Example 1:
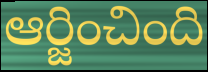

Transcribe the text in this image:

ఆర్జించింది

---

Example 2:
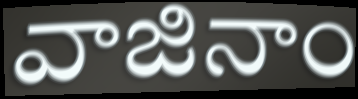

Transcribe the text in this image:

వాజినాం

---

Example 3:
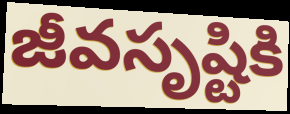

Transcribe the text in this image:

జీవసృష్టికి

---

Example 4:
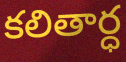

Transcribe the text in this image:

కలితార్ధ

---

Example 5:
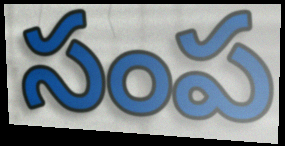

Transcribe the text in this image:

సంప